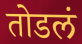
तोडलं